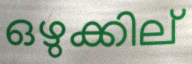
ഒഴുക്കില്